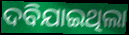
ଦବିଯାଇଥିଲା